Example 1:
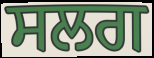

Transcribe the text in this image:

ਸਲਗ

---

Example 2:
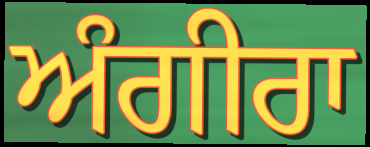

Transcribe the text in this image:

ਅੰਗੀਰਾ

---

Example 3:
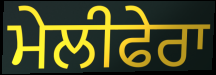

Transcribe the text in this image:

ਮੇਲੀਫੇਰਾ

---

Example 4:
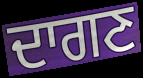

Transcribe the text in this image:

ਦਾਗਣ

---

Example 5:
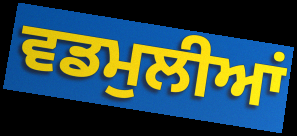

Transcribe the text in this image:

ਵਡਮੁਲੀਆਂ